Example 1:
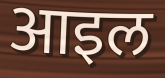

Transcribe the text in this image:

आइल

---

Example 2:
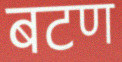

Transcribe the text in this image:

बटण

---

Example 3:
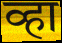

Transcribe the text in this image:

व्हा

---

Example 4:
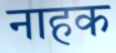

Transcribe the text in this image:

नाहक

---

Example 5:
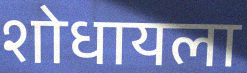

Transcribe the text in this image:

शोधायला